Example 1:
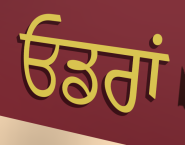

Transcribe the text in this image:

ਓਡਰਾਂ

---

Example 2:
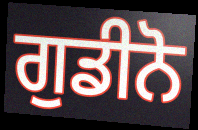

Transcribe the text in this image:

ਗੁਡੀਨੋ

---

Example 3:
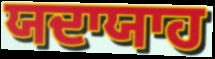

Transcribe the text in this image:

ਯਦਾਯਾਹ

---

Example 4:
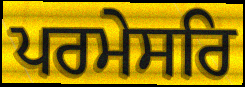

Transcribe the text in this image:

ਪਰਮੇਸਰਿ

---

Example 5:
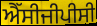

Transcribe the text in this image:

ਐੱਸੀਜੀਪੀਸੀ